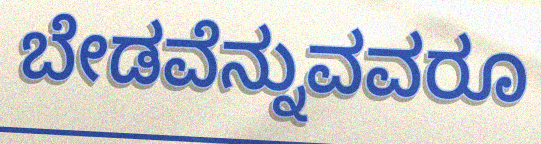
ಬೇಡವೆನ್ನುವವರೂ